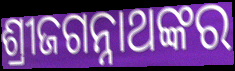
ଶ୍ରୀଜଗନ୍ନାଥଙ୍କର